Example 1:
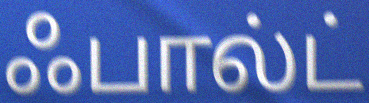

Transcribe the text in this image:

ஃபால்ட்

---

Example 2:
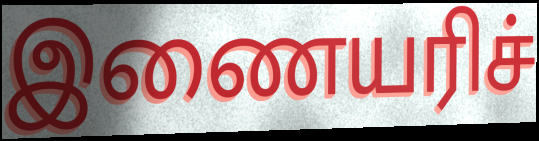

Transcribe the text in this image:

இணையரிச்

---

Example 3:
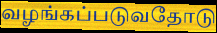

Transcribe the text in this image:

வழங்கப்படுவதோடு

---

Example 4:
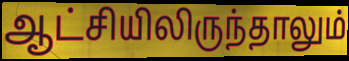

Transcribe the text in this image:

ஆட்சியிலிருந்தாலும்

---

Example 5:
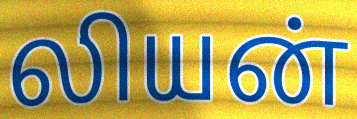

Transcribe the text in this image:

லியன்